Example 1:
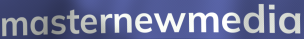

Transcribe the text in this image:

masternewmedia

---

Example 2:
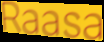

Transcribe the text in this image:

Raasa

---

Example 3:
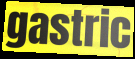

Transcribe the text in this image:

gastric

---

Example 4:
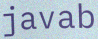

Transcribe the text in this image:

javab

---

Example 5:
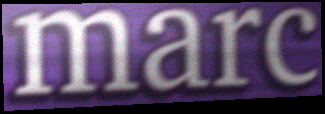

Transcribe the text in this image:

marc